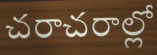
చరాచరాల్లో